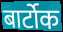
बार्टोक